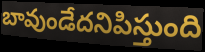
బావుండేదనిపిస్తుంది